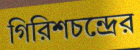
গিরিশচন্দ্রের